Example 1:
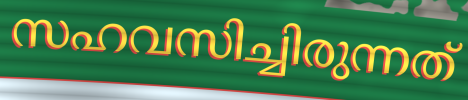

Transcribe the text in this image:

സഹവസിച്ചിരുന്നത്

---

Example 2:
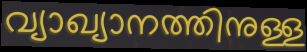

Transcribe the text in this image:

വ്യാഖ്യാനത്തിനുള്ള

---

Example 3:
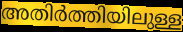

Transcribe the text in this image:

അതിർത്തിയിലുള്ള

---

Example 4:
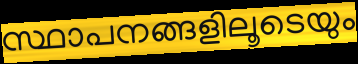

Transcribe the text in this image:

സ്ഥാപനങ്ങളിലൂടെയും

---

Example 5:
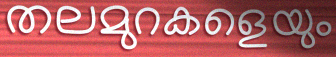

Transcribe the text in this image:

തലമുറകളെയും